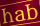
hab